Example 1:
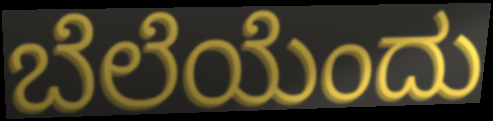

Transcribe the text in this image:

ಬೆಲೆಯೆಂದು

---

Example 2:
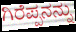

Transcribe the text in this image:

ಗಿರೆಪ್ಪನನ್ನು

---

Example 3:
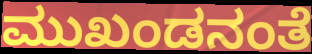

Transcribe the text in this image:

ಮುಖಂಡನಂತೆ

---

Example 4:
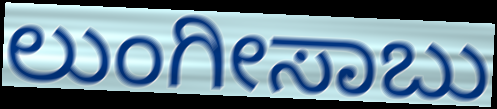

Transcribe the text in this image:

ಲುಂಗೀಸಾಬು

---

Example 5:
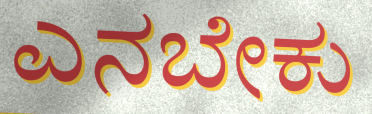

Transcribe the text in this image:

ಎನಬೇಕು